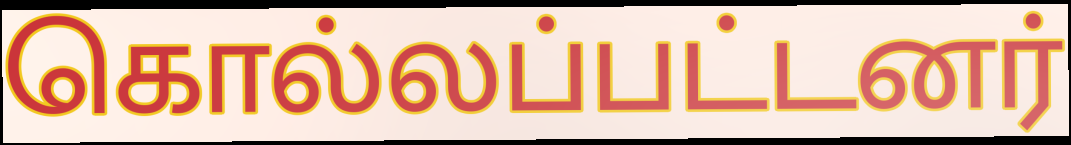
கொல்லப்பட்டனர்